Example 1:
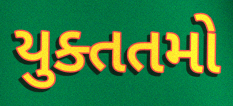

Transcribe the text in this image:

યુક્તતમો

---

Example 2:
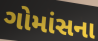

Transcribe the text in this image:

ગોમાંસના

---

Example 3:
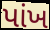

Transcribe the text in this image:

પાંખ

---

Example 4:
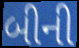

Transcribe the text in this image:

બીની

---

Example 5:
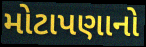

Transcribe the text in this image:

મોટાપણાનો